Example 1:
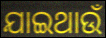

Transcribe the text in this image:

ଯାଇଥାଉଁ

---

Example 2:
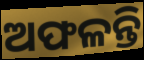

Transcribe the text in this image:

ଅଫଳନ୍ତି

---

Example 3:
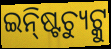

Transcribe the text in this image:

ଇନ୍ଷ୍ଟିଚ୍ୟୁଟ୍କୁ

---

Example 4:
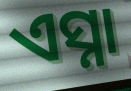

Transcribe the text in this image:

ଏସ୍ନା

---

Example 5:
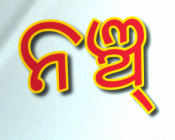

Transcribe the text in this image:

ନଞ୍ଚ୍